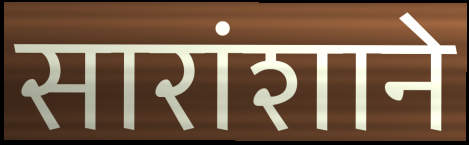
सारांशाने